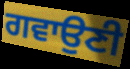
ਗਵਾਉਣੀ